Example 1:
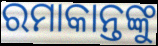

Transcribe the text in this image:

ରମାକାନ୍ତଙ୍କୁ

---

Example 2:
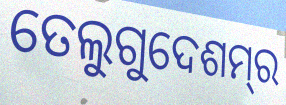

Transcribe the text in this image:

ତେଲୁଗୁଦେଶମ୍‌ର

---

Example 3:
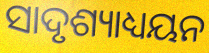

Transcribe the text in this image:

ସାଦୃଶ୍ୟାଧ୍ୟୟନ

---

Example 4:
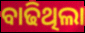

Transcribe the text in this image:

ବାଢିଥିଲା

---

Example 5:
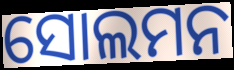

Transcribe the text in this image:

ସୋଲମନ